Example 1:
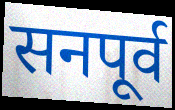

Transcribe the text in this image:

सनपूर्व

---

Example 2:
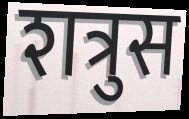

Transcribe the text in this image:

शत्रुस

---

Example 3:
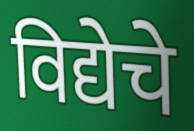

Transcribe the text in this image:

विद्येचे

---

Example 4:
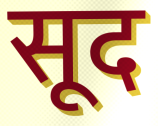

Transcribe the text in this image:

सूद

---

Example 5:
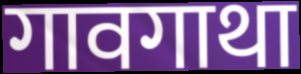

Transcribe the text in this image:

गावगाथा